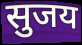
सुजय